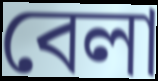
বেলা